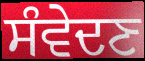
ਸੰਵੇਦਣ